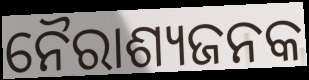
ନୈରାଶ୍ୟଜନକ